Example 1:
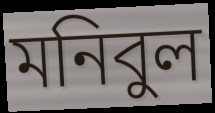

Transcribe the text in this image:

মনিবুল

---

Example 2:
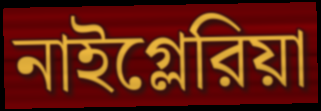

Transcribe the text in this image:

নাইগ্লেরিয়া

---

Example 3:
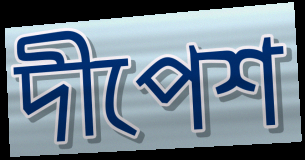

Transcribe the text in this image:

দীপেশ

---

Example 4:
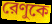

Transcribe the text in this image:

রেণুকে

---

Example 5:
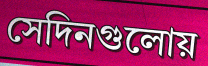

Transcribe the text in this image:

সেদিনগুলোয়